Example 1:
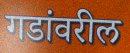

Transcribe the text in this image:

गडांवरील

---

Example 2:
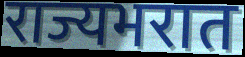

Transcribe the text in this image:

राज्यभरात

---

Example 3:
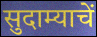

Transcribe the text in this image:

सुदाम्याचें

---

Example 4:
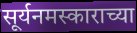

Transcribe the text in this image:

सूर्यनमस्काराच्या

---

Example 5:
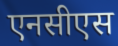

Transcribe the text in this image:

एनसीएस